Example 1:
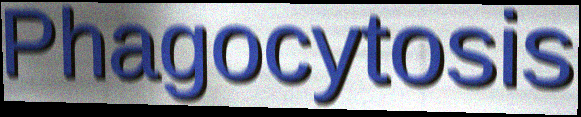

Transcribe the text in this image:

Phagocytosis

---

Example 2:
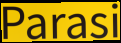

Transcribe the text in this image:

Parasi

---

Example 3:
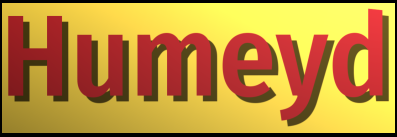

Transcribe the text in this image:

Humeyd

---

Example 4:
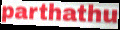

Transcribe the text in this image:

parthathu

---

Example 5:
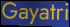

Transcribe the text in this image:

Gayatri